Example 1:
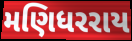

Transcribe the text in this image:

મણિધરરાય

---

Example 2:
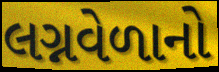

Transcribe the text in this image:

લગ્નવેળાનો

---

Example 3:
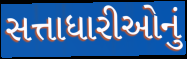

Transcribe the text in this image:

સત્તાધારીઓનું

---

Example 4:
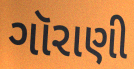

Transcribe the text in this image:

ગૉરાણી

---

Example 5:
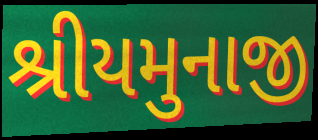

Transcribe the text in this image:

શ્રીયમુનાજી